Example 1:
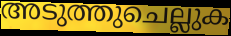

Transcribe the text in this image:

അടുത്തുചെല്ലുക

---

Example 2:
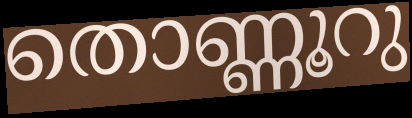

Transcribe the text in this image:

തൊണ്ണൂറു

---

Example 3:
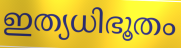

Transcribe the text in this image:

ഇത്യധിഭൂതം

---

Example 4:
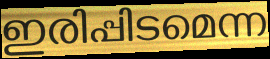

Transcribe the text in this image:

ഇരിപ്പിടമെന്ന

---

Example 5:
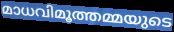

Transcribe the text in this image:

മാധവിമൂത്തമ്മയുടെ